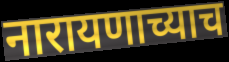
नारायणाच्याच